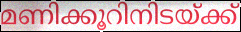
മണിക്കൂറിനിടയ്ക്ക്